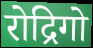
रोद्रिगो